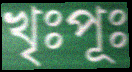
খৃঃপূঃ